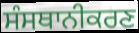
ਸੰਸਥਾਨੀਕਰਣ